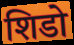
शिडो